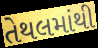
તેથલમાંથી